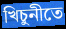
খিচুনীতে